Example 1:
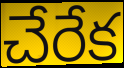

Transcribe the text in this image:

చేరేక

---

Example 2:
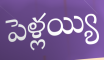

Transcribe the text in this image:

పెళ్లయ్యి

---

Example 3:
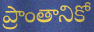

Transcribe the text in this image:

ప్రాంతానికో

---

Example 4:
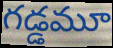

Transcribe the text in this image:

గడ్డమూ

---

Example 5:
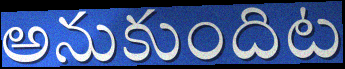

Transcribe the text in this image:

అనుకుందిట